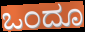
ಒಂದೂ